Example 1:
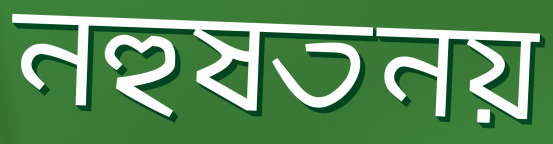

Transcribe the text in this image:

নহুষতনয়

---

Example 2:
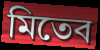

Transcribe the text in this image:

মিতেব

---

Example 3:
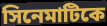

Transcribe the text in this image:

সিনেমাটিকে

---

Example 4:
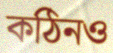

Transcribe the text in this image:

কঠিনও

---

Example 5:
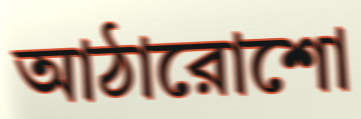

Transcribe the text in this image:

আঠারোশো